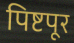
पिष्टपूर